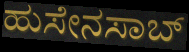
ಹುಸೇನಸಾಬ್